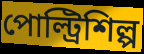
পোল্ট্রিশিল্প